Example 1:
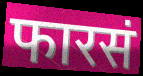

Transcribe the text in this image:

फारसं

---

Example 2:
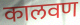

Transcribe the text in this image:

कालवण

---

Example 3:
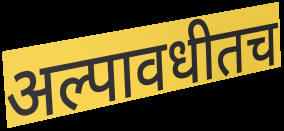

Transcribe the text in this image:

अल्पावधीतच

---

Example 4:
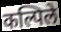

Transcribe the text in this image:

कल्पिले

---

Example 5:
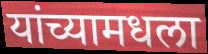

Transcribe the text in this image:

यांच्यामधला